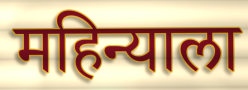
महिन्याला